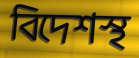
বিদেশস্থ